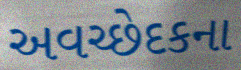
અવચ્છેદકના